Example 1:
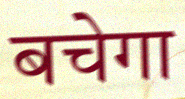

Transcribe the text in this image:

बचेगा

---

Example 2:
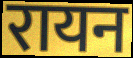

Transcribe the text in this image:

रायन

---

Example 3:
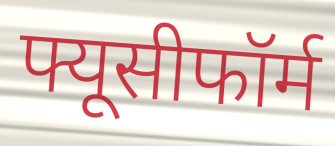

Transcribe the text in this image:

फ्यूसीफॉर्म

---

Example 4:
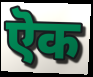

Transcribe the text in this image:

ऎक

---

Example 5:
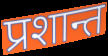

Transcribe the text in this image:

प्रशान्त